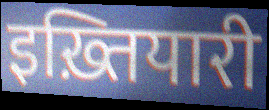
इख़्तियारी